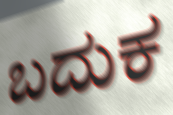
ಬದುಕ